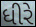
ધીરે